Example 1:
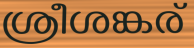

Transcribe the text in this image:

ശ്രീശങ്കര്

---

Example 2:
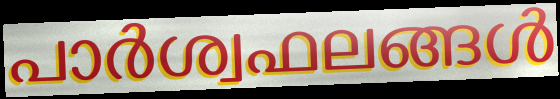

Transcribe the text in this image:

പാർശ്വഫലങ്ങൾ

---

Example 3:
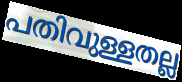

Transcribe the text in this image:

പതിവുള്ളതല്ല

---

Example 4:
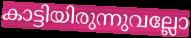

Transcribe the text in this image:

കാട്ടിയിരുന്നുവല്ലോ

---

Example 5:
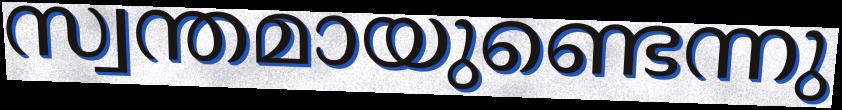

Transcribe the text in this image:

സ്വന്തമായുണ്ടെന്നു